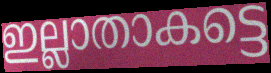
ഇല്ലാതാകട്ടെ